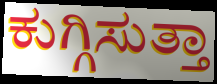
ಕುಗ್ಗಿಸುತ್ತಾ